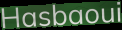
Hasbaoui